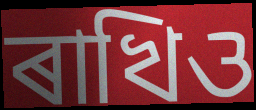
ৰাখিও